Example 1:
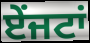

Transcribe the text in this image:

ਏਂਜਟਾਂ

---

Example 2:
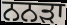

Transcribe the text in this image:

ਨਨੜਾ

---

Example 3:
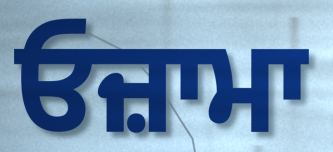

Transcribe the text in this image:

ਓਜ਼ਾਮਾ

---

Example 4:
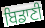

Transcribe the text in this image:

ਬਿਡਾਣੀ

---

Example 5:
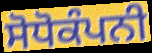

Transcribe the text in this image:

ਸੋਧੋਕੰਪਨੀ